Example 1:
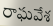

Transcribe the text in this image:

రాఘవేశ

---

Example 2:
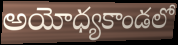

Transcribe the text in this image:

అయోధ్యకాండలో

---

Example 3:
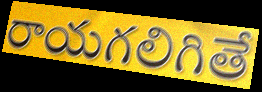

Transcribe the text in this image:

రాయగలిగితే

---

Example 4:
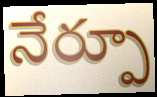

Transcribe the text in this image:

నేర్పూ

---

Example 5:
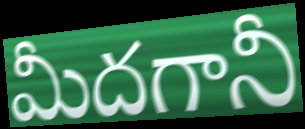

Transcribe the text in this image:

మీదగానీ